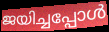
ജയിച്ചപ്പോൾ